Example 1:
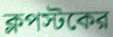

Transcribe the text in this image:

ক্লপস্টকের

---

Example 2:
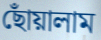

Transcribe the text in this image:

ছোঁয়ালাম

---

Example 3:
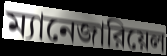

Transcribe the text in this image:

ম্যানেজারিয়েল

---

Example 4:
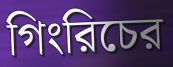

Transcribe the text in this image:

গিংরিচের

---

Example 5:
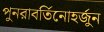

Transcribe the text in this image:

পুনরাবর্তিনোহর্জুন